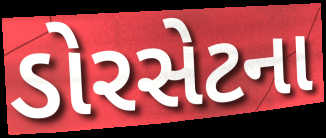
ડોરસેટના